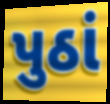
પુઠાં